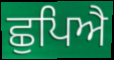
ਛੁਪਿਐ